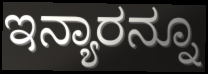
ಇನ್ಯಾರನ್ನೂ